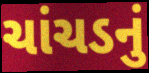
ચાંચડનું